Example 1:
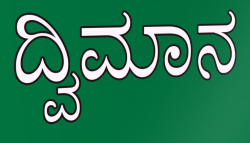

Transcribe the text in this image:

ದ್ವಿಮಾನ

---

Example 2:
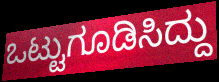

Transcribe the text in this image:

ಒಟ್ಟುಗೂಡಿಸಿದ್ದು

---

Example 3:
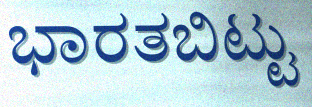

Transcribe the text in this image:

ಭಾರತಬಿಟ್ಟು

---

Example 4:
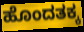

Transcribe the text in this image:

ಹೊಂದತಕ್ಕ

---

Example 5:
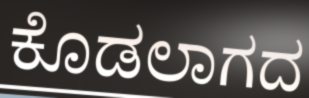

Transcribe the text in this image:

ಕೊಡಲಾಗದ